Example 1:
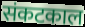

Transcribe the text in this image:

संकटकाल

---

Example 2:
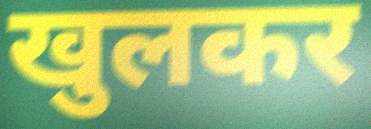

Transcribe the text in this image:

खुलकर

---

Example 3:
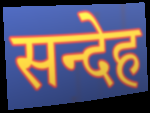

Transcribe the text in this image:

सन्देह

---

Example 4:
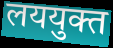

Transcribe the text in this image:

लययुक्त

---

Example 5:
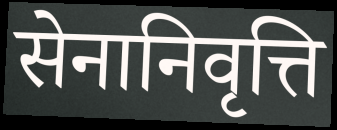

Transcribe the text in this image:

सेनानिवृत्ति